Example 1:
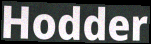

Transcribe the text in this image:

Hodder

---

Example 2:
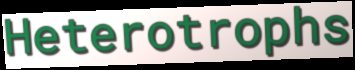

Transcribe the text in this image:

Heterotrophs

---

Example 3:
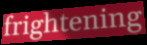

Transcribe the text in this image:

frightening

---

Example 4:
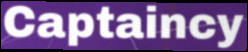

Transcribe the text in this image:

Captaincy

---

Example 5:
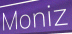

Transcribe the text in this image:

Moniz